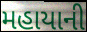
મહાયાની